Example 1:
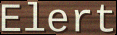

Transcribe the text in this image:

Elert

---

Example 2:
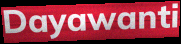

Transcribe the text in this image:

Dayawanti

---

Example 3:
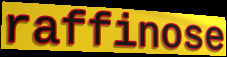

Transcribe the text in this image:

raffinose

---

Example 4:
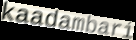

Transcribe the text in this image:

kaadambari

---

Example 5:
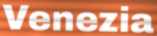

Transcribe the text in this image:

Venezia